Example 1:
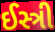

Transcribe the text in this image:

ઈસ્ત્રી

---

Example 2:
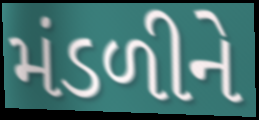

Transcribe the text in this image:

મંડળીને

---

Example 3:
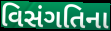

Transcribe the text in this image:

વિસંગતિના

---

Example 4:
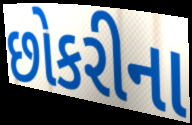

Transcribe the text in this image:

છોકરીના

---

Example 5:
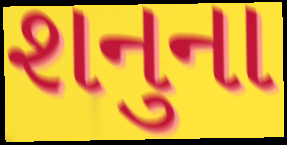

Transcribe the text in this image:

શનુના